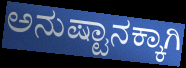
ಅನುಷ್ಟಾನಕ್ಕಾಗಿ